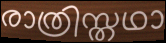
രാത്രിസ്തഥാ